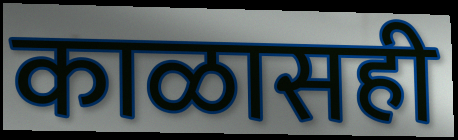
काळासही